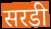
सरडी